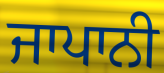
ਜਾਪਾਨੀ